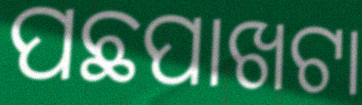
ପଛପାଖଟା